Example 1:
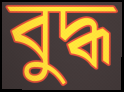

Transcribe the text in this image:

বুদ্ধ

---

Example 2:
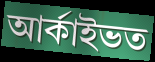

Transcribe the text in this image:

আৰ্কাইভত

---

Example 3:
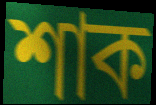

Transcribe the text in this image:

শাক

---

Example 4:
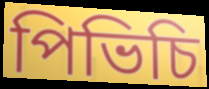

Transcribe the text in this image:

পিভিচি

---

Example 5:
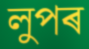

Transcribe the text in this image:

লুপৰ